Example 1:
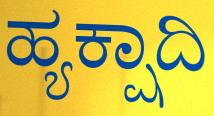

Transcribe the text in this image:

ಹ್ಯಕ್ಷಾದಿ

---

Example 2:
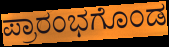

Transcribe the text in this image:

ಪ್ರಾರಂಭಗೊಂಡ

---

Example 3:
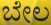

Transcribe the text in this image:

ಬೇಲ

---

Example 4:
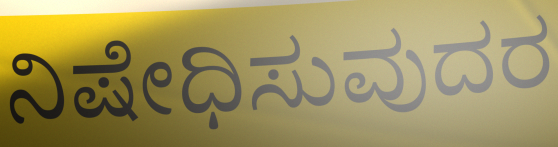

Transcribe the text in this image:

ನಿಷೇಧಿಸುವುದರ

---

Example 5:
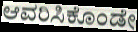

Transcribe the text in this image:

ಆವರಿಸಿಕೊಂಡೇ